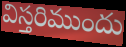
విస్తరిముందు